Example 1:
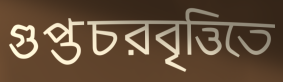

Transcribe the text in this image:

গুপ্তচরবৃত্তিতে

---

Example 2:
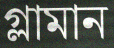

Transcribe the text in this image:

গ্লামান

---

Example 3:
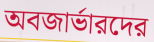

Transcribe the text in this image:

অবজার্ভারদের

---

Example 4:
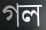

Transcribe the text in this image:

গল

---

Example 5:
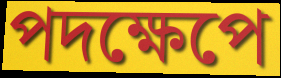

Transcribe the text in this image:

পদক্ষেপে